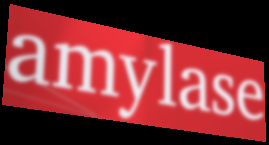
amylase